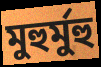
মুহুর্মুহু